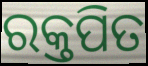
ରକ୍ତପିତ